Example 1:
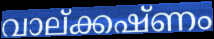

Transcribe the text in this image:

വാല്ക്കഷ്ണം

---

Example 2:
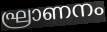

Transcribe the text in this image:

ഘ്രാണനം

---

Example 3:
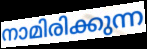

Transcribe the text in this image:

നാമിരിക്കുന്ന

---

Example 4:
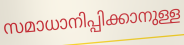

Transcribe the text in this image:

സമാധാനിപ്പിക്കാനുള്ള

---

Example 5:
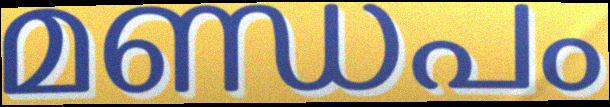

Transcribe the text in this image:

മണ്ഡപം